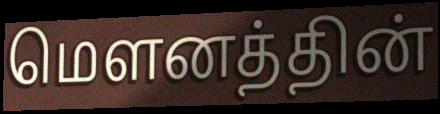
மௌனத்தின்